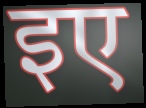
इए